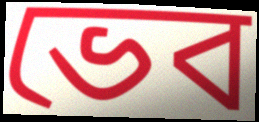
ভেব